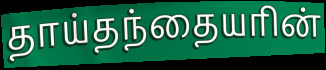
தாய்தந்தையரின்